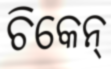
ଚିକେନ୍